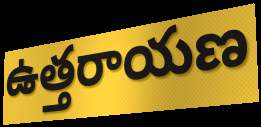
ఉత్తరాయణ